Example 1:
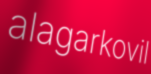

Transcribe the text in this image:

alagarkovil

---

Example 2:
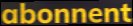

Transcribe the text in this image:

abonnent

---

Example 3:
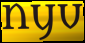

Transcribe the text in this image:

nyu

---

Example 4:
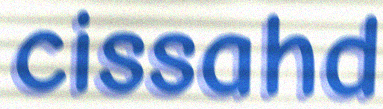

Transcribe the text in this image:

cissahd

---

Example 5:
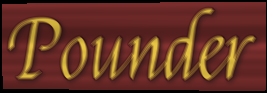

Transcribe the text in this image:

Pounder